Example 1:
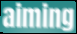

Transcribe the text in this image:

aiming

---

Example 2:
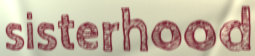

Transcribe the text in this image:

sisterhood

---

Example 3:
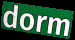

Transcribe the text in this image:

dorm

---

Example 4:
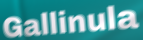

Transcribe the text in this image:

Gallinula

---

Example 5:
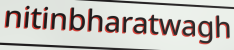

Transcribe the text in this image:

nitinbharatwagh